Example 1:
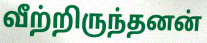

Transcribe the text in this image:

வீற்றிருந்தனன்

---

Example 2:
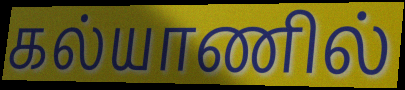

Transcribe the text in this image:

கல்யாணில்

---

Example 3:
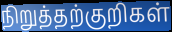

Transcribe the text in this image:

நிறுத்தற்குறிகள்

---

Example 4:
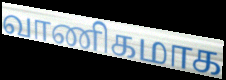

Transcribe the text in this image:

வாணிகமாக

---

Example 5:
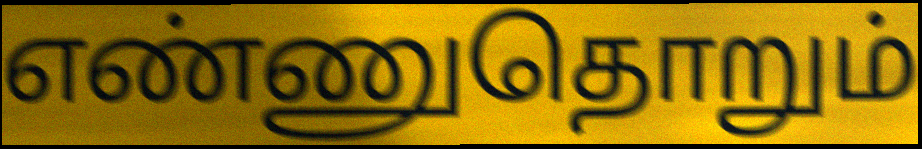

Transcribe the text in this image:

எண்ணுதொறும்